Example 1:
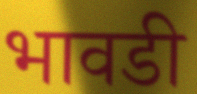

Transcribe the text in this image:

भावडी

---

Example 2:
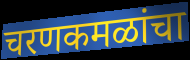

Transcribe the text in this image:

चरणकमळांचा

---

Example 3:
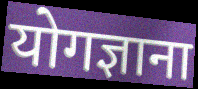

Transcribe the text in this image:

योगज्ञाना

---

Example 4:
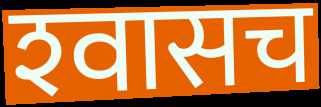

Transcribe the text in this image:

श्‍वासच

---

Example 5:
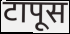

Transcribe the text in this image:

टापूस